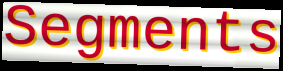
Segments